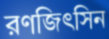
রণজিৎসিন